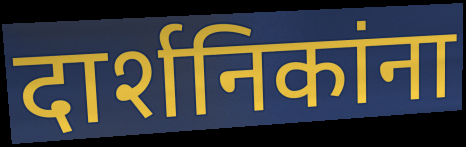
दार्शनिकांना